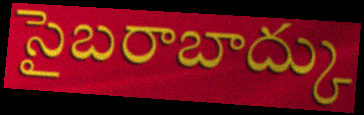
సైబరాబాద్కు